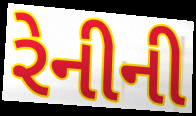
રેનીની